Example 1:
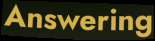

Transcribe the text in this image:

Answering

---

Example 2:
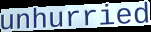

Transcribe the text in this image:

unhurried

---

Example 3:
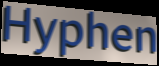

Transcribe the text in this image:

Hyphen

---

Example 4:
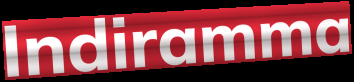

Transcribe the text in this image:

Indiramma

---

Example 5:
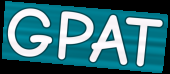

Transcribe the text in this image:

GPAT